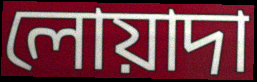
লোয়াদা